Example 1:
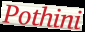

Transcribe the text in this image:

Pothini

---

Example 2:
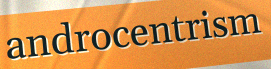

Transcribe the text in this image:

androcentrism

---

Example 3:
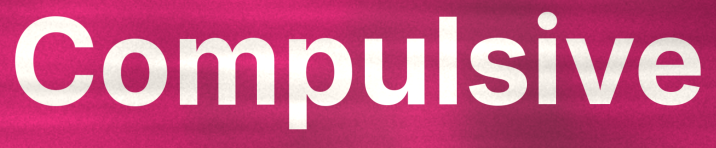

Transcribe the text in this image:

Compulsive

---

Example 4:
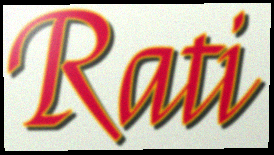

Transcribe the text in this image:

Rati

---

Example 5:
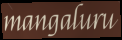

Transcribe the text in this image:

mangaluru